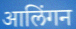
आलिंगन